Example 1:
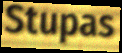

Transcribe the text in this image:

Stupas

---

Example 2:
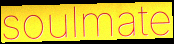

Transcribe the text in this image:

soulmate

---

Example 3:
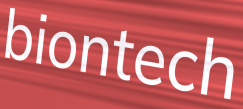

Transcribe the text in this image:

biontech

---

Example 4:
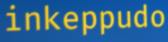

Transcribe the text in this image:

inkeppudo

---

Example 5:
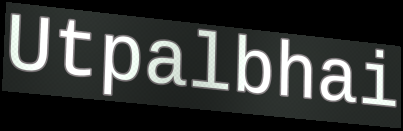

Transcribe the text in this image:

Utpalbhai